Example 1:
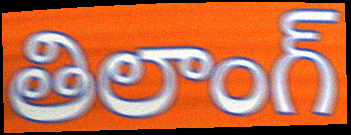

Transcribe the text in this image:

తిలాంగ్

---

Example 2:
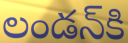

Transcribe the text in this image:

లండన్‌కి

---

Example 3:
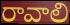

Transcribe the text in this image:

రావాలి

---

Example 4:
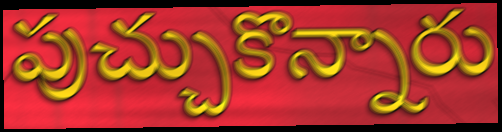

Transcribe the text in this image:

పుచ్చుకొన్నారు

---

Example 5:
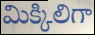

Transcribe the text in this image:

మిక్కిలిగా